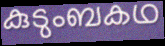
കുടുംബകഥ